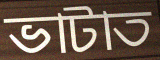
ভাটাত